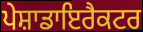
ਪੇਸ਼ਾਡਾਇਰੈਕਟਰ